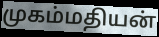
முகம்மதியன்